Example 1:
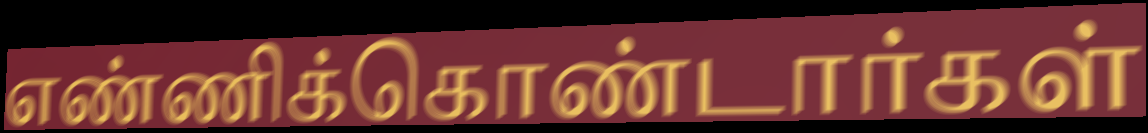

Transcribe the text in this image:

எண்ணிக்கொண்டார்கள்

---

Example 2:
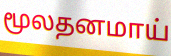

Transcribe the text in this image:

மூலதனமாய்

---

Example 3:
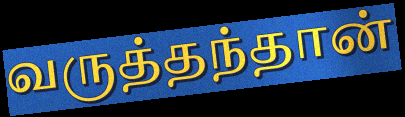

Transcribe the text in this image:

வருத்தந்தான்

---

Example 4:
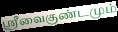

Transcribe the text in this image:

ஸ்ரீவைகுண்டமும்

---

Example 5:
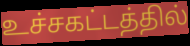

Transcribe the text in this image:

உச்சகட்டத்தில்